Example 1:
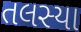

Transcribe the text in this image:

તલસ્યા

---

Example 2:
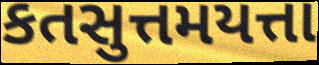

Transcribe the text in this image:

કતસુત્તમયત્તા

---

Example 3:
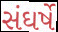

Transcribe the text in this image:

સંઘર્ષે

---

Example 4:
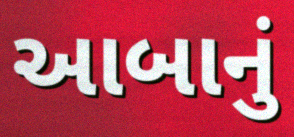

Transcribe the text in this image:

આબાનું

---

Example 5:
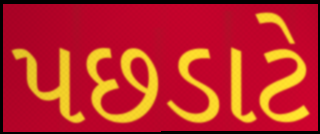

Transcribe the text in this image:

પછડાટે